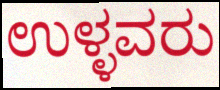
ಉಳ್ಳವರು